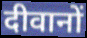
दीवानों